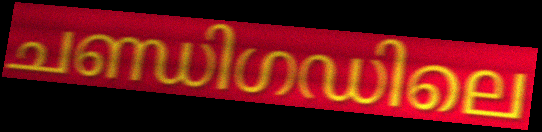
ചണ്ഡിഗഡിലെ